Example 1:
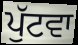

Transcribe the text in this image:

ਪੁੱਟਵਾ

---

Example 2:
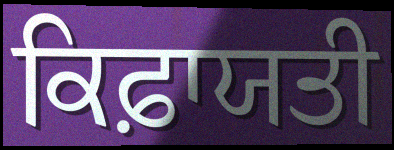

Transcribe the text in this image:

ਕਿਫ਼ਾਯਤੀ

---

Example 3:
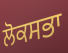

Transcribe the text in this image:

ਲੋਕਸਭਾ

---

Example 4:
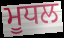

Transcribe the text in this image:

ਮੂਧਲ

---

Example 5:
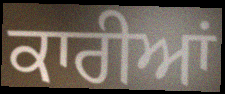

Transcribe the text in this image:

ਕਾਰੀਆਂ